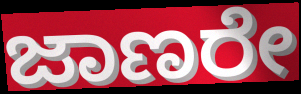
ಜಾಣರೇ